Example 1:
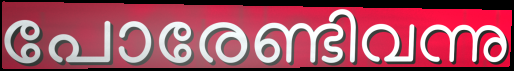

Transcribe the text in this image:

പോരേണ്ടിവന്നു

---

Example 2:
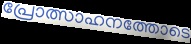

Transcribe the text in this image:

പ്രോത്സാഹനത്തോടെ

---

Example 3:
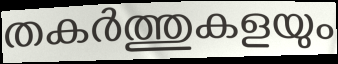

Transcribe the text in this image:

തകർത്തുകളയും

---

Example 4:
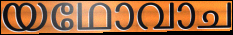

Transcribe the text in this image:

യഥോവാച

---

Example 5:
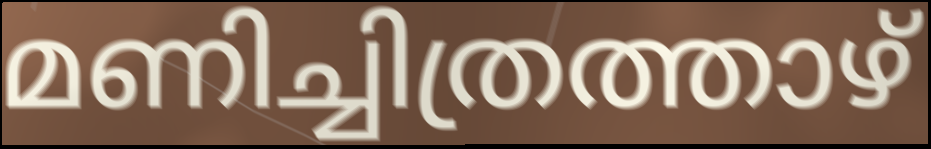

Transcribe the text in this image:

മണിച്ചിത്രത്താഴ്